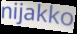
nijakko